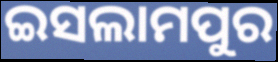
ଇସଲାମପୁର